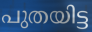
പുതയിട്ട